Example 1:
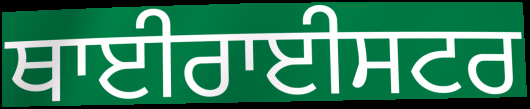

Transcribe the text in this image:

ਥਾਈਰਾਈਸਟਰ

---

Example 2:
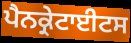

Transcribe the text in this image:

ਪੈਨਕ੍ਰੇਟਾਈਟਸ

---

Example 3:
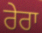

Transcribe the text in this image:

ਰੇਰਾ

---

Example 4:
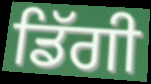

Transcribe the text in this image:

ਡਿੱਗੀ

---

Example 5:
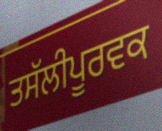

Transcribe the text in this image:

ਤਸੱਲੀਪੂਰਵਕ